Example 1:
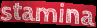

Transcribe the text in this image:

stamina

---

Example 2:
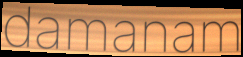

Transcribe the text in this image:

damanam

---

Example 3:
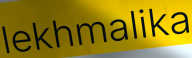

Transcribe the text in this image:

lekhmalika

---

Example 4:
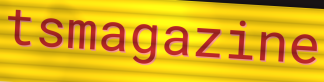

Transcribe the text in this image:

tsmagazine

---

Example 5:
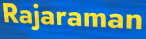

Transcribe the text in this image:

Rajaraman